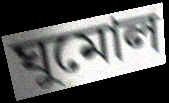
ঘুমোল